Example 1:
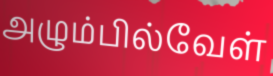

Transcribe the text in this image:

அழும்பில்வேள்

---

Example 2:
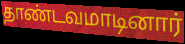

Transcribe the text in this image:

தாண்டவமாடினார்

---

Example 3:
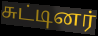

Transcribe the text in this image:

சுட்டினர்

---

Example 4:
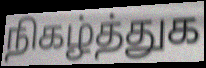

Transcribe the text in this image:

நிகழ்த்துக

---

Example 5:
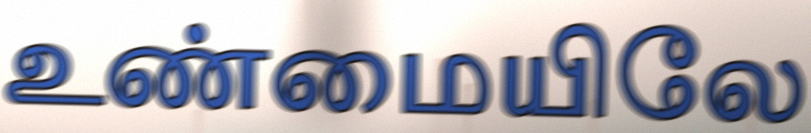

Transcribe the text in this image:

உண்மையிலே